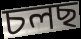
চলছ